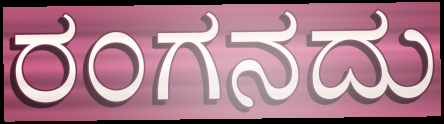
ರಂಗನದು